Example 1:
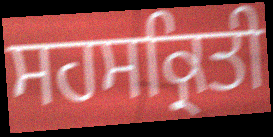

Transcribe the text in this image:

ਸਹਸਕ੍ਰਿਤੀ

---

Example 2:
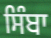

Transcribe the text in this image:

ਸਿੰਬਾ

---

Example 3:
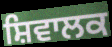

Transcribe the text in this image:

ਸ਼ਿਵਾਲਕ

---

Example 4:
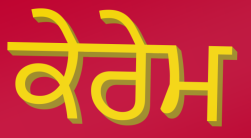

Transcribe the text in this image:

ਕੇਰੇਮ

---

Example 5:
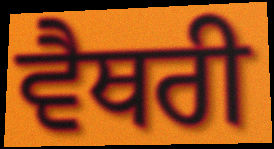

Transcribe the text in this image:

ਵੈਥਰੀ